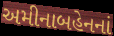
અમીનાબહેનનાં